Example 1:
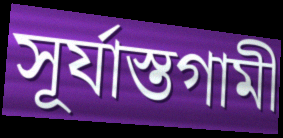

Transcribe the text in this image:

সূর্যাস্তগামী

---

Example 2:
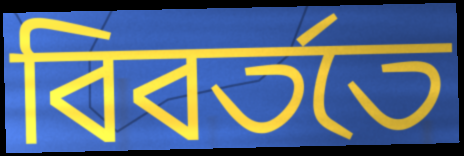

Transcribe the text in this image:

বিবর্ততে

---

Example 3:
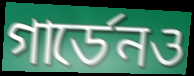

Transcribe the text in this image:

গার্ডেনও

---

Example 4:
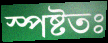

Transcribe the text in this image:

স্পষ্টতঃ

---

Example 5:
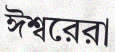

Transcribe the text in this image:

ঈশ্বরেরা